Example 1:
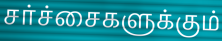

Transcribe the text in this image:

சர்ச்சைகளுக்கும்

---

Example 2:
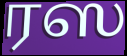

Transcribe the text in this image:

ரஸ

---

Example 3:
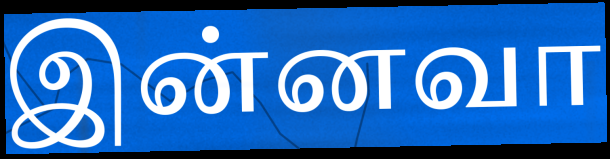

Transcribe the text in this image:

இன்னவா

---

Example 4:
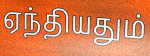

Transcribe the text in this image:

ஏந்தியதும்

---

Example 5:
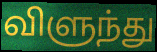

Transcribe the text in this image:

விளுந்து